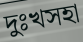
দুঃখসহা